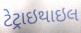
ટેટ્રાઇથાઇલ